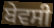
ਬੇਵਸੀ